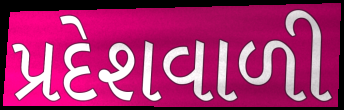
પ્રદેશવાળી